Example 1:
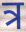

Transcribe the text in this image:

त्र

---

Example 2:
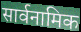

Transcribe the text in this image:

सार्वनामिक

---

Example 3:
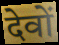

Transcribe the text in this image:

देवों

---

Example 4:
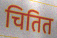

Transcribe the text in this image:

चितित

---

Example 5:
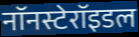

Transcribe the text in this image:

नॉनस्टेरॉइडल